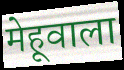
मेहूवाला